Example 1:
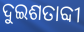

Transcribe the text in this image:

ଦୁଇଶତାବ୍ଦୀ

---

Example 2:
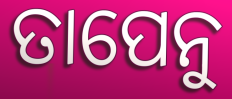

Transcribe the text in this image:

ତାପେନୁ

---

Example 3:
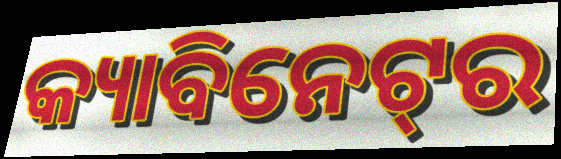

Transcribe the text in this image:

କ୍ୟାବିନେଟ୍‌ର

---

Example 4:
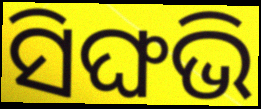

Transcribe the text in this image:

ସିଙ୍ଘଭି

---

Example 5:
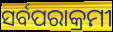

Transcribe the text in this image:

ସର୍ବପରାକ୍ରମୀ